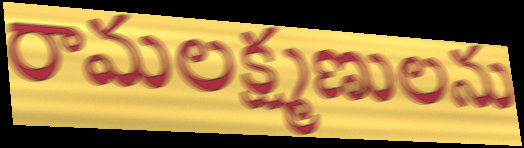
రామలక్ష్మణులను